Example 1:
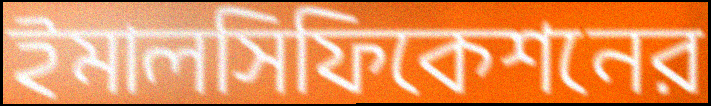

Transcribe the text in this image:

ইমালসিফিকেশনের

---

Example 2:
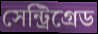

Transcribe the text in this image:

সেন্ট্রিগ্রেড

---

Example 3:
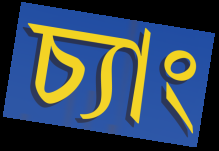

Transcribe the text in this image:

চ্যাং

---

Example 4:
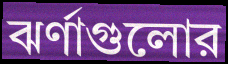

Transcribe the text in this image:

ঝর্ণাগুলোর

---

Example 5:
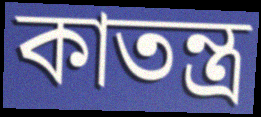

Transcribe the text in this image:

কাতন্ত্র